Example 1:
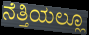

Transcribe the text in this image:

ನೆತ್ತಿಯಲ್ಲೂ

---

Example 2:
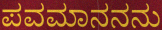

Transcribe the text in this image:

ಪವಮಾನನನು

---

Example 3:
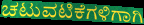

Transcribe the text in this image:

ಚಟುವಟಿಕೆಗಳಿಗಾಗಿ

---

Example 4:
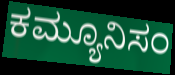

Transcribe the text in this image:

ಕಮ್ಯೂನಿಸಂ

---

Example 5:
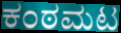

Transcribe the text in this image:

ಕಂಠಮಟ